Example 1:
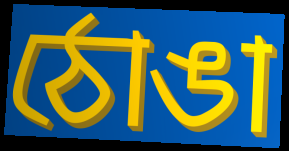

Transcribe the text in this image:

ঠোঙা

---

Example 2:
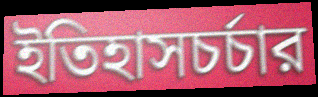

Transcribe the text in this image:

ইতিহাসচর্চার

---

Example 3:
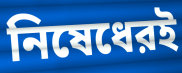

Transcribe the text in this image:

নিষেধেরই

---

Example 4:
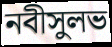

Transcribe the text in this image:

নবীসুলভ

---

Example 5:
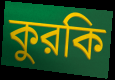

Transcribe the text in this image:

কুরকি